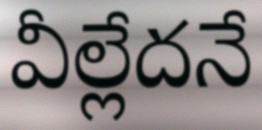
వీల్లేదనే